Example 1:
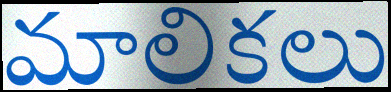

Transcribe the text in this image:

మాలికలు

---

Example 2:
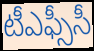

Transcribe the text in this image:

టీఎఫ్సీసీ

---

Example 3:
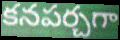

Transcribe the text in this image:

కనపర్చగా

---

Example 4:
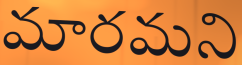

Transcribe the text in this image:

మారమని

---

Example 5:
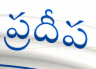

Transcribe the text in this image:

ప్రదీప